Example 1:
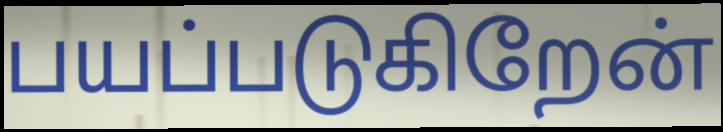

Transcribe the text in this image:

பயப்படுகிறேன்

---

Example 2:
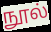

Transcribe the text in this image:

நூல்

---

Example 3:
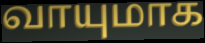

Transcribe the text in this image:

வாயுமாக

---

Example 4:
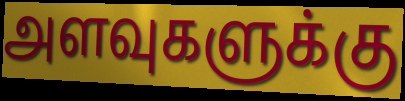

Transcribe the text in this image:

அளவுகளுக்கு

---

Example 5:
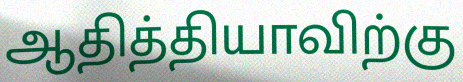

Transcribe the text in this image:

ஆதித்தியாவிற்கு